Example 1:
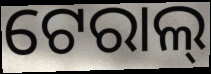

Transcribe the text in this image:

ଟେରାଲ୍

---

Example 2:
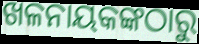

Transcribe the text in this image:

ଖଳନାୟକଙ୍କଠାରୁ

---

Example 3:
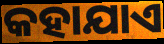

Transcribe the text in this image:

କହାଯାଏ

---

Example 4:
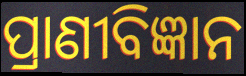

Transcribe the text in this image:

ପ୍ରାଣୀବିଜ୍ଞାନ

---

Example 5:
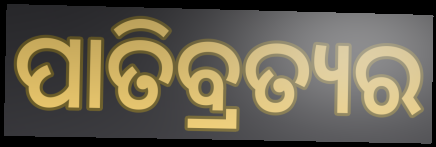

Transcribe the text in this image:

ପାତିବ୍ରତ୍ୟର